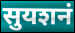
सुयशनं